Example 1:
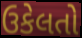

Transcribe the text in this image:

ઉકેલતો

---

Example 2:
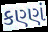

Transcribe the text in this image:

કણ્ણં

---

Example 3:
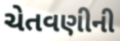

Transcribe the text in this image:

ચેતવણીની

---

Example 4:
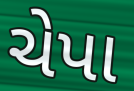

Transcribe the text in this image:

ચેપા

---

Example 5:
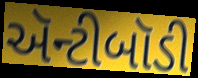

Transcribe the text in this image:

ઍન્ટીબૉડી